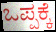
ಒಪ್ಪಕ್ಕೆ